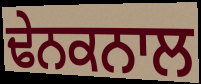
ਢੇਨਕਨਾਲ